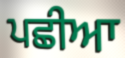
ਪਛੀਆ